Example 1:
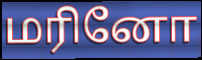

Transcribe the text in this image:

மரினோ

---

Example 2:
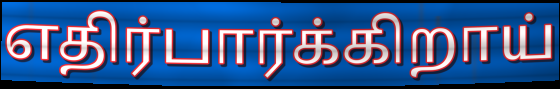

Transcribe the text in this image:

எதிர்பார்க்கிறாய்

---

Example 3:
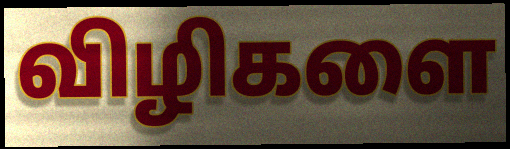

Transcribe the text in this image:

விழிகளை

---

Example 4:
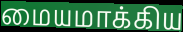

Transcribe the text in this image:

மையமாக்கிய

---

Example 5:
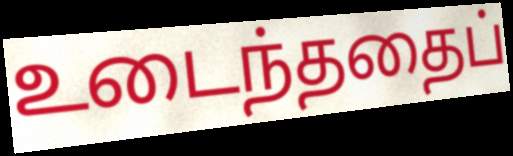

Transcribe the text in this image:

உடைந்ததைப்